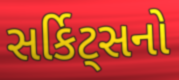
સર્કિટ્સનો